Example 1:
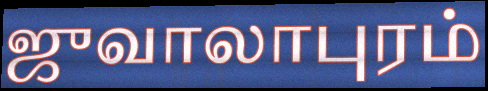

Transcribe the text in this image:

ஜுவாலாபுரம்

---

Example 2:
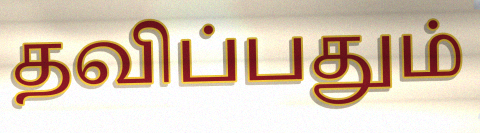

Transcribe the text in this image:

தவிப்பதும்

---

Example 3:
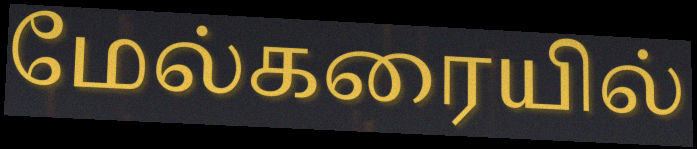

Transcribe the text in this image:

மேல்கரையில்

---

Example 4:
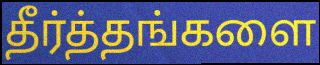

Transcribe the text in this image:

தீர்த்தங்களை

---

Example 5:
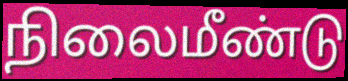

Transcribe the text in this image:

நிலைமீண்டு